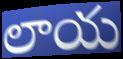
లాయ